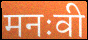
मनःवी